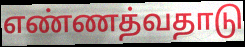
எண்ணத்வதாடு